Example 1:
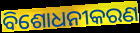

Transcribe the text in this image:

ବିଶୋଧନୀକରଣ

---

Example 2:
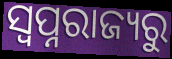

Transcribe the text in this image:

ସ୍ୱପ୍ନରାଜ୍ୟରୁ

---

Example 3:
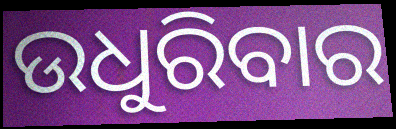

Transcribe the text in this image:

ଉଧୁରିବାର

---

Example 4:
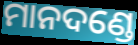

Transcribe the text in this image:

ମାନଦଣ୍ଡେ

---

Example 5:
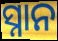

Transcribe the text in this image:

ସ୍ନାନ